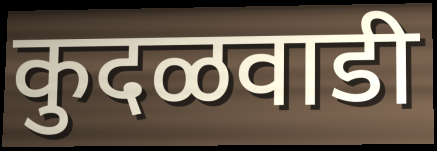
कुदळवाडी